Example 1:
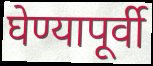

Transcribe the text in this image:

घेण्यापूर्वी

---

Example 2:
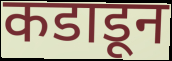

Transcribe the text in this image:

कडाडून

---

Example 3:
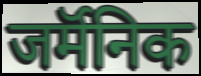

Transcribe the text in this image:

जर्मॅनिक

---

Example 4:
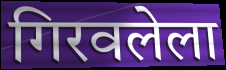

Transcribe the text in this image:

गिरवलेला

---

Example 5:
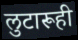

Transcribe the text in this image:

लुटारूही